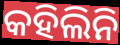
କହିଲିନି